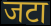
जटा